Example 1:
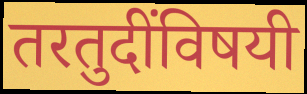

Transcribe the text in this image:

तरतुदींविषयी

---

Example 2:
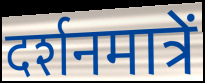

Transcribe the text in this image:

दर्शनमात्रें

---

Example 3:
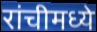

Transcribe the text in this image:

रांचीमध्ये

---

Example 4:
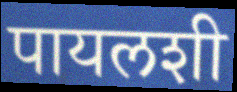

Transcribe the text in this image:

पायलशी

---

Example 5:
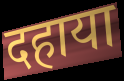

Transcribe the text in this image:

दहाया